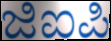
ಜಿಐಪಿ